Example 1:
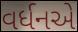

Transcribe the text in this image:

વર્ધનએ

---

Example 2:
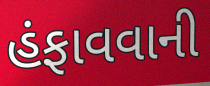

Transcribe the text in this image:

હંફાવવાની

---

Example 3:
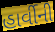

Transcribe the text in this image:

હાર્વીની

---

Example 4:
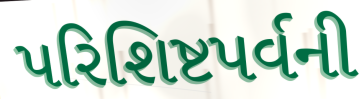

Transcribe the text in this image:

પરિશિષ્ટપર્વની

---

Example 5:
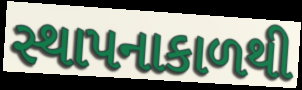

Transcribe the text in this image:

સ્થાપનાકાળથી